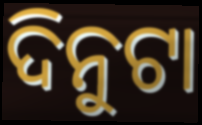
ଦିନୁଟା